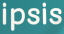
ipsis